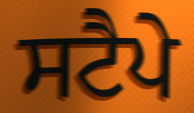
ਸਟੈਪੇ